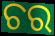
ଚର